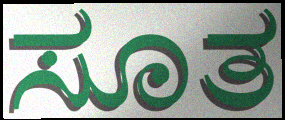
ಸೂತ